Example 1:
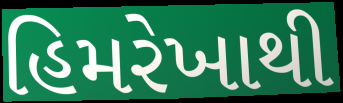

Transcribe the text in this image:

હિમરેખાથી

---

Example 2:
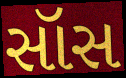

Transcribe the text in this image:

સૉસ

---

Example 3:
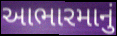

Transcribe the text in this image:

આભારમાનું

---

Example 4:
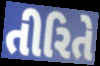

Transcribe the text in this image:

તીરિતે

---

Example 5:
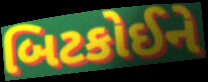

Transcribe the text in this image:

બિટકોઈને